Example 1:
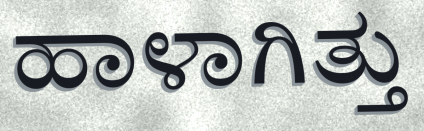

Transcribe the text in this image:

ಹಾಳಾಗಿತ್ತು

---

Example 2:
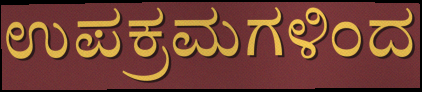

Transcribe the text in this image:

ಉಪಕ್ರಮಗಳಿಂದ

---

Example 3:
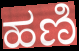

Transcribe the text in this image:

ಹಣಿ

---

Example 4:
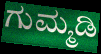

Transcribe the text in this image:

ಗುಮ್ಮಡಿ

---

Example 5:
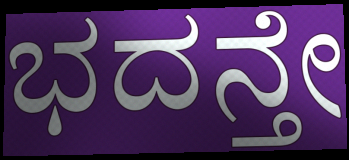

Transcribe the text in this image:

ಭದನ್ತೇ